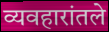
व्यवहारांतले